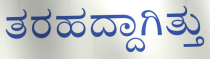
ತರಹದ್ದಾಗಿತ್ತು